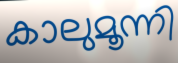
കാലുമൂന്നി